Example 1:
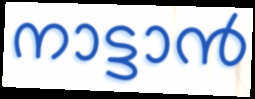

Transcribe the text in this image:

നാട്ടാൻ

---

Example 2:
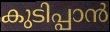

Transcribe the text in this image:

കുടിപ്പാൻ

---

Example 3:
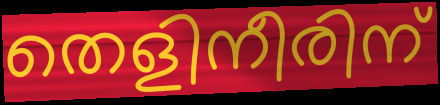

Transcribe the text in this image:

തെളിനീരിന്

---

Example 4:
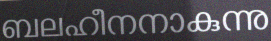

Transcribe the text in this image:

ബലഹീനനാകുന്നു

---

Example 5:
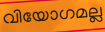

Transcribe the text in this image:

വിയോഗമല്ല